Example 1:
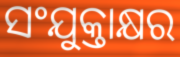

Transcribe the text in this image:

ସଂଯୁକ୍ତାକ୍ଷର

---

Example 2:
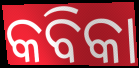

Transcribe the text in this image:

କବିକା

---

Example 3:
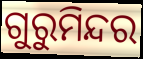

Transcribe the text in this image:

ଗୁରୁମିନ୍ଦର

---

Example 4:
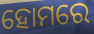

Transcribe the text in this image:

ହୋମରେ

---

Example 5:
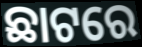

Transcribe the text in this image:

ଛାଟରେ